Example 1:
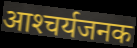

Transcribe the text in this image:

आश्‍चर्यजनक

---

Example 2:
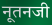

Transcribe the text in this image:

नूतनजी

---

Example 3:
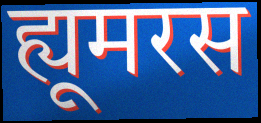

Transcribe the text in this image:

ह्यूमरस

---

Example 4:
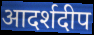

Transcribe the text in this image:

आदर्शदीप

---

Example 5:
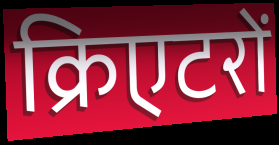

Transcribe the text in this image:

क्रिएटरों